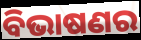
ବିଭାଷଣର